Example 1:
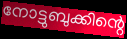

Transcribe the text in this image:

നോട്ടുബുക്കിന്റെ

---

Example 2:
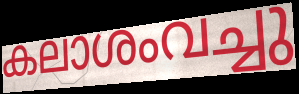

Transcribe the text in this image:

കലാശംവച്ചു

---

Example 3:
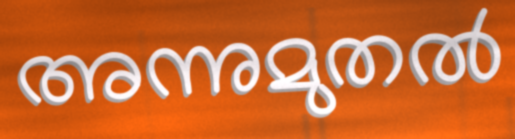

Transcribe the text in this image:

അന്നുമുതൽ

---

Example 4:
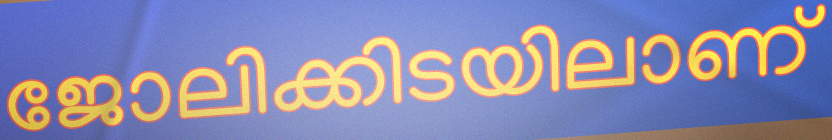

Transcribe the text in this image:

ജോലിക്കിടയിലാണ്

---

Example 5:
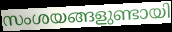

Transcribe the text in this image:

സംശയങ്ങളുണ്ടായി